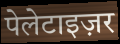
पेलेटाइज़र